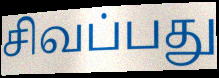
சிவப்பது